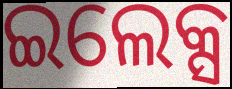
ଇଲେକ୍ସ